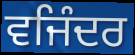
ਵਜਿੰਦਰ